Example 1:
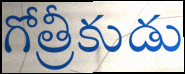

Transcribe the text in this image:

గోత్రీకుడు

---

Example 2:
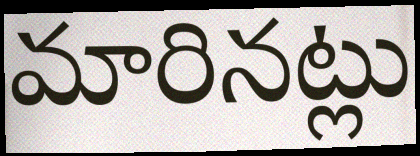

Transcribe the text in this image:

మారినట్లు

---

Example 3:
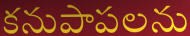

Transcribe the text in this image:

కనుపాపలను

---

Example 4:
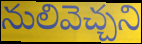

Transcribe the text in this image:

నులివెచ్చని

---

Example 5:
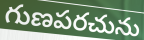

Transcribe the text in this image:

గుణపరచును